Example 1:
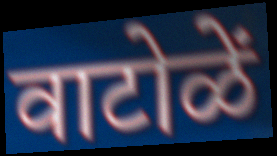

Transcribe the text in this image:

वाटोळें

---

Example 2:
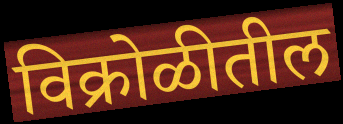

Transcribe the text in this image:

विक्रोळीतील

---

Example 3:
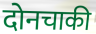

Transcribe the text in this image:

दोनचाकी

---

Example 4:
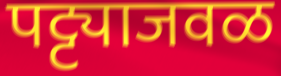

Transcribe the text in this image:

पट्ट्याजवळ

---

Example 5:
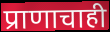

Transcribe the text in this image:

प्राणाचाही